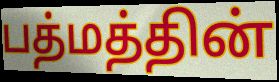
பத்மத்தின்